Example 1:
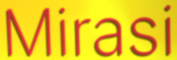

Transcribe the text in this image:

Mirasi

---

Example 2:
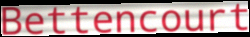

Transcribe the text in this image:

Bettencourt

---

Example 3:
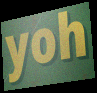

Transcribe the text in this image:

yoh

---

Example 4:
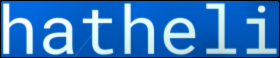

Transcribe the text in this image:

hatheli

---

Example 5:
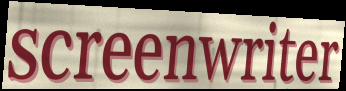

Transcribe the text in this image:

screenwriter